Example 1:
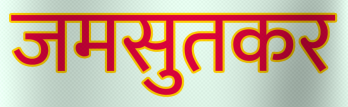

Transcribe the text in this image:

जमसुतकर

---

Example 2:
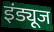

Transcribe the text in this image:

इंड्यूज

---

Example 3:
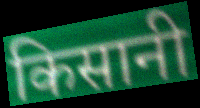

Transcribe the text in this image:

किसानी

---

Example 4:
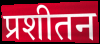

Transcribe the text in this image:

प्रशीतन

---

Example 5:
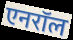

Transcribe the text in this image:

एनरॉल